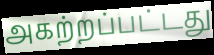
அகற்றப்பட்டது